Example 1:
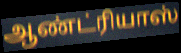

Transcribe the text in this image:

ஆண்ட்ரியாஸ்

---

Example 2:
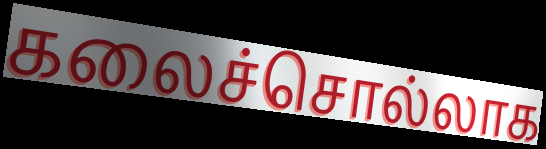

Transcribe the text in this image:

கலைச்சொல்லாக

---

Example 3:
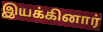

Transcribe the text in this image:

இயக்கினார்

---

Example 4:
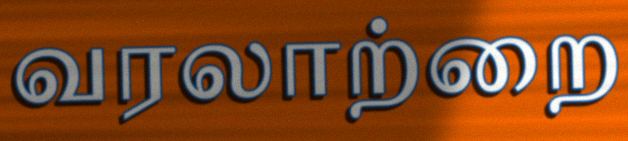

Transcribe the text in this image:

வரலாற்றை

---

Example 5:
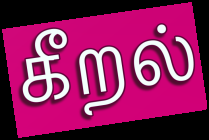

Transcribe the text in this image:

கீறல்